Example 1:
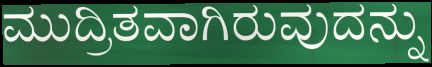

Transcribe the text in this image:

ಮುದ್ರಿತವಾಗಿರುವುದನ್ನು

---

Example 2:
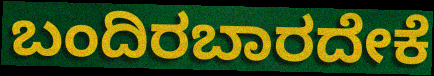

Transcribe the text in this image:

ಬಂದಿರಬಾರದೇಕೆ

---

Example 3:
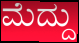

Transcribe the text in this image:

ಮೆದ್ದು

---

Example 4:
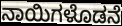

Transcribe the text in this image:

ನಾಯಿಗಳೊಡನೆ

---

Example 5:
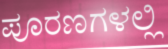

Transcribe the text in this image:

ಪೂರಣಗಳಲ್ಲಿ